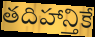
తదిహాన్తికే